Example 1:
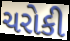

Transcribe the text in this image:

ચરોકી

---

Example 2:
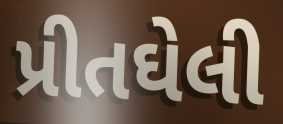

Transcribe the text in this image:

પ્રીતઘેલી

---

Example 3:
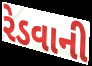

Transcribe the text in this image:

રેડવાની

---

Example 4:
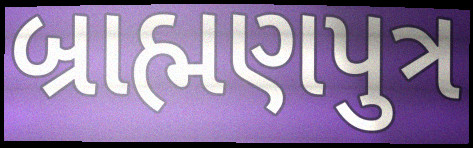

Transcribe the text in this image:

બ્રાહ્મણપુત્ર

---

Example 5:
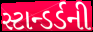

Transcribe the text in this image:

સ્ટાન્ડર્ડની